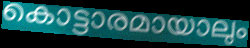
കൊട്ടാരമായാലും